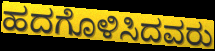
ಹದಗೊಳಿಸಿದವರು